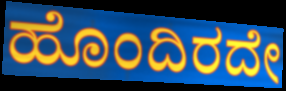
ಹೊಂದಿರದೇ